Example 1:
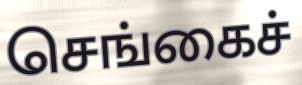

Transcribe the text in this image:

செங்கைச்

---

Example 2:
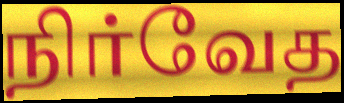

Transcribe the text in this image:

நிர்வேத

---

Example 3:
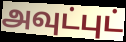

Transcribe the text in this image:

அவுட்புட்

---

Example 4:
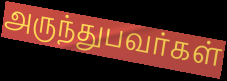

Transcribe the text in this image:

அருந்துபவர்கள்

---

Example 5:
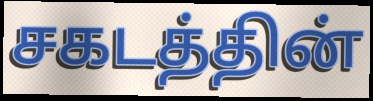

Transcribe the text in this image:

சகடத்தின்